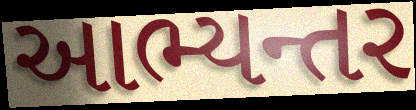
આભ્યન્તર